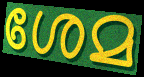
ശേമ